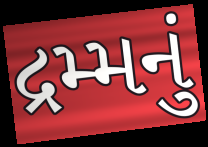
દ્રમ્મનું